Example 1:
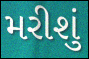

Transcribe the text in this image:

મરીશું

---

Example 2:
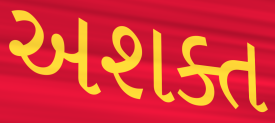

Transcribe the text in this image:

અશક્ત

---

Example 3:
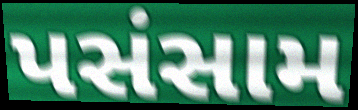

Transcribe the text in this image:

પસંસામ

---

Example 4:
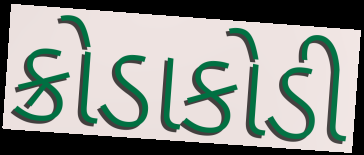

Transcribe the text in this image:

ક્રોડાકોડી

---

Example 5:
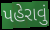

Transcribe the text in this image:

પહેરાવું